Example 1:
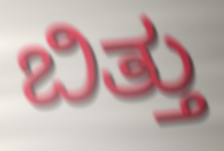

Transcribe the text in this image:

ಬಿತ್ತು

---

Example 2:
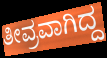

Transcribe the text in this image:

ತೀವ್ರವಾಗಿದ್ದ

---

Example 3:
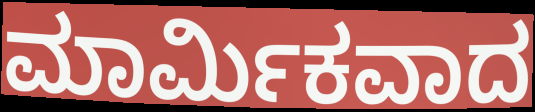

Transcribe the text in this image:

ಮಾರ್ಮಿಕವಾದ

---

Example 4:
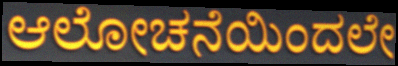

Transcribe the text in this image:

ಆಲೋಚನೆಯಿಂದಲೇ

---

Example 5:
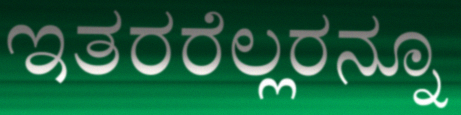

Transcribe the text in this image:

ಇತರರೆಲ್ಲರನ್ನೂ